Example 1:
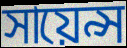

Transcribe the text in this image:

সায়েন্স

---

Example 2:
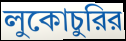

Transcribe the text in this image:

লুকোচুরির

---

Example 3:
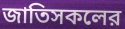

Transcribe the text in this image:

জাতিসকলের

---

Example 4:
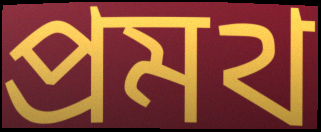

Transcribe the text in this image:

প্রমথ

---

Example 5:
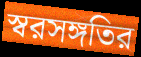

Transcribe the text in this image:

স্বরসঙ্গতির